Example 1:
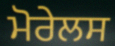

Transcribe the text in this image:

ਮੋਰੇਲਸ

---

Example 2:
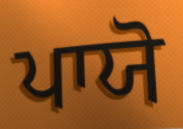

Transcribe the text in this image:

ਪਾਯੋ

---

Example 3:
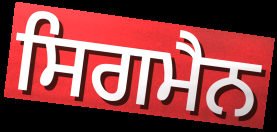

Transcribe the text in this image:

ਸਿਗਮੈਨ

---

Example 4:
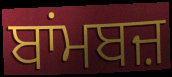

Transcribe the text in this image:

ਬਾਂਮਬਜ਼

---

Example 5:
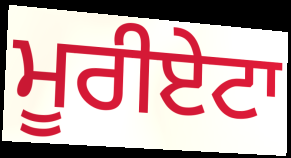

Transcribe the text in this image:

ਮੂਰੀਏਟਾ